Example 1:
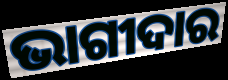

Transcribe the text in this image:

ଭାଗୀଦାର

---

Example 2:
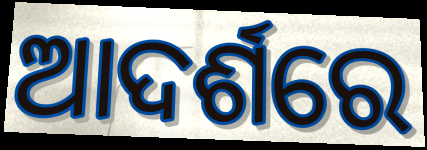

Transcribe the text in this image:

ଆଦର୍ଶରେ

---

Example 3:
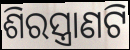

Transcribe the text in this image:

ଶିରସ୍ତ୍ରାଣଟି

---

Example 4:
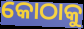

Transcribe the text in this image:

କୋଠାକୁ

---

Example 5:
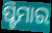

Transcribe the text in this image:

ଷ୍ଟିମାର